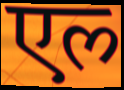
एल्‍